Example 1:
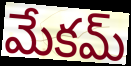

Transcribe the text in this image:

మేకమ్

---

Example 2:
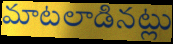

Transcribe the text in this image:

మాటలాడినట్లు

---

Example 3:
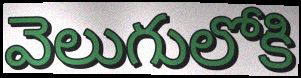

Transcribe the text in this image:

వెలుగులోకి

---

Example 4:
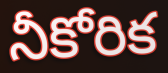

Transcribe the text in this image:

నీకోరిక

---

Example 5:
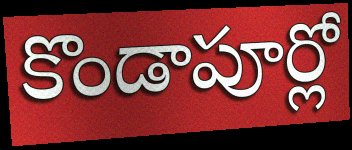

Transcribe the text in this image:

కొండాపూర్లో